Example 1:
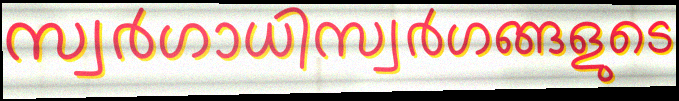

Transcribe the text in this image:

സ്വർഗാധിസ്വർഗങ്ങളുടെ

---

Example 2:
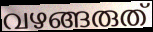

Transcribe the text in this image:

വഴങ്ങരുത്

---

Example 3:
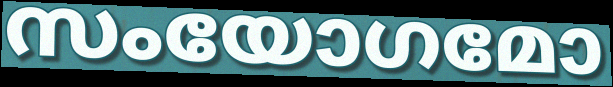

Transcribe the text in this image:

സംയോഗമോ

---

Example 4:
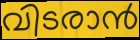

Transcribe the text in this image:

വിടരാൻ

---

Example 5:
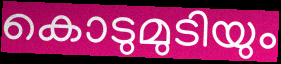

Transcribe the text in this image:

കൊടുമുടിയും